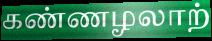
கண்ணழலாற்